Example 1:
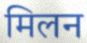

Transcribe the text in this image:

मिलन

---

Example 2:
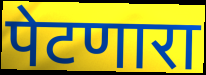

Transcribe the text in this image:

पेटणारा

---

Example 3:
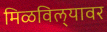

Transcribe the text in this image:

मिळविल्यावर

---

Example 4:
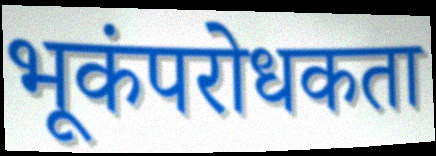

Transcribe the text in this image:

भूकंपरोधकता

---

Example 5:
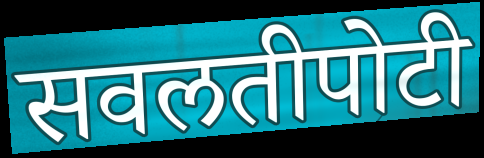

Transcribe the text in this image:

सवलतीपोटी